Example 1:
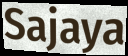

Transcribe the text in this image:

Sajaya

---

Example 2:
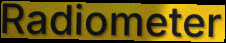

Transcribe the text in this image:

Radiometer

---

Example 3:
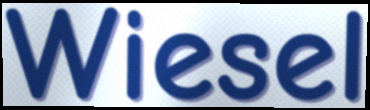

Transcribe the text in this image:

Wiesel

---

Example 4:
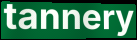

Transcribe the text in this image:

tannery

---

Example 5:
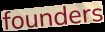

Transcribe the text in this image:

founders